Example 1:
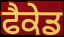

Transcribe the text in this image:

ਫੈਕੇਡ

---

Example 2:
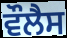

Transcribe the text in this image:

ਵੌਲੈਸ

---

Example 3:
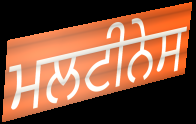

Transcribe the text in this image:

ਮਲਟੀਨੇਸ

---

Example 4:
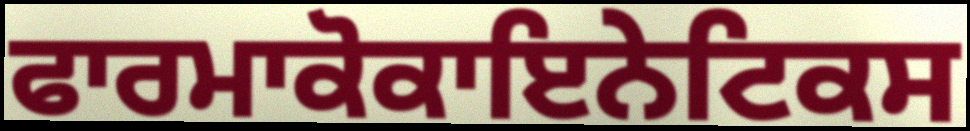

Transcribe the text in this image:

ਫਾਰਮਾਕੋਕਾਇਨੇਟਿਕਸ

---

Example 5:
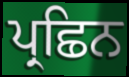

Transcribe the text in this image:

ਪ੍ਰਛਿਨ